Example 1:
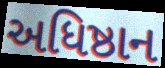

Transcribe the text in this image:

અધિષ્ઠાન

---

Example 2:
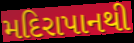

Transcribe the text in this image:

મદિરાપાનથી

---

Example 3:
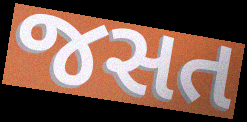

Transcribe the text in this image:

જસત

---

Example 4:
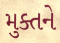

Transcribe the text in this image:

મુક્તને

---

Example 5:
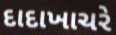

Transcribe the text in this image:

દાદાખાચરે